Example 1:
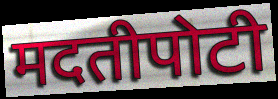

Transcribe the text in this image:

मदतीपोटी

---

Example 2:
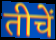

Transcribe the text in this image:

तीचें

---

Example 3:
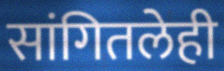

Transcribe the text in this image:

सांगितलेही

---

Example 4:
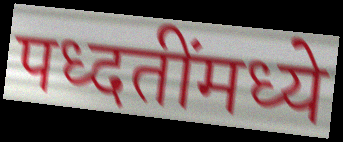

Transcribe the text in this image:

पध्दतींमध्ये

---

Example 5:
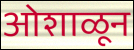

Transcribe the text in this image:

ओशाळून